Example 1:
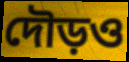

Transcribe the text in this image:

দৌড়ও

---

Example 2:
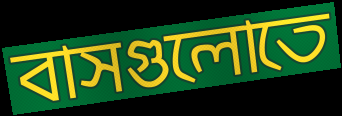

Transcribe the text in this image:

বাসগুলোতে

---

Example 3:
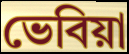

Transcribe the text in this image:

ভেবিয়া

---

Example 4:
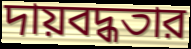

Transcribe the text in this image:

দায়বদ্ধতার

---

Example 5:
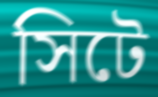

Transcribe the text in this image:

সিটে